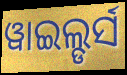
ୱାଇଲ୍ଡର୍ସ